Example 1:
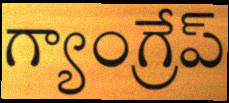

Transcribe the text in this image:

గ్యాంగ్రేప్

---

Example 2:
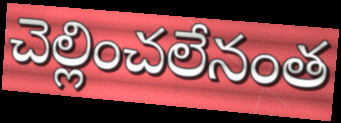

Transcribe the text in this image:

చెల్లించలేనంత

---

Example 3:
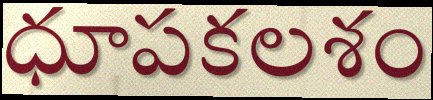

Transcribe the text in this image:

ధూపకలశం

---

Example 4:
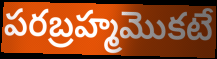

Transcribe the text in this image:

పరబ్రహ్మమొకటే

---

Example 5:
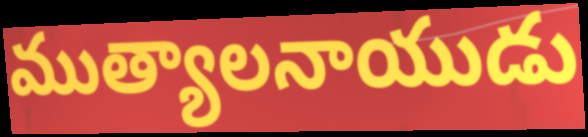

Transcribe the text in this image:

ముత్యాలనాయుడు